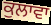
ਕੁਲਾਵਾ